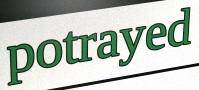
potrayed